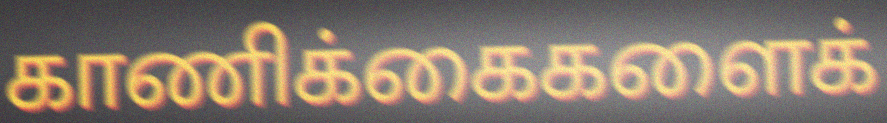
காணிக்கைகளைக்